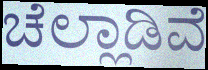
ಚೆಲ್ಲಾಡಿವೆ